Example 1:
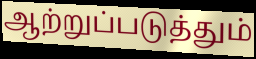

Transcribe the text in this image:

ஆற்றுப்படுத்தும்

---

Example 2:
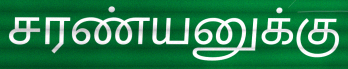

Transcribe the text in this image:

சரண்யனுக்கு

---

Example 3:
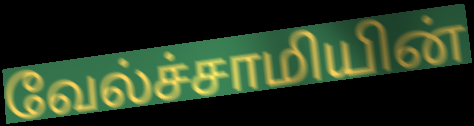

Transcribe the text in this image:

வேல்ச்சாமியின்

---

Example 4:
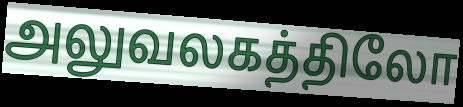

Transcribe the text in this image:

அலுவலகத்திலோ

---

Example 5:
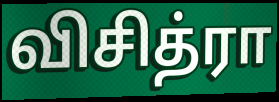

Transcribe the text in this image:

விசித்ரா